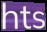
hts